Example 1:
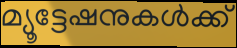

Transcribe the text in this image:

മ്യൂട്ടേഷനുകൾക്ക്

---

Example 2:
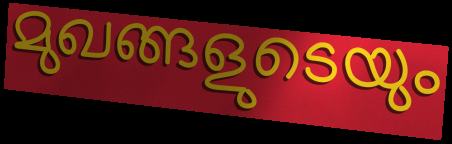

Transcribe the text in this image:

മുഖങ്ങളുടെയും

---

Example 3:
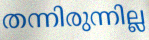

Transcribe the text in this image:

തന്നിരുന്നില്ല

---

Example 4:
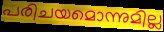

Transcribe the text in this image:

പരിചയമൊന്നുമില്ല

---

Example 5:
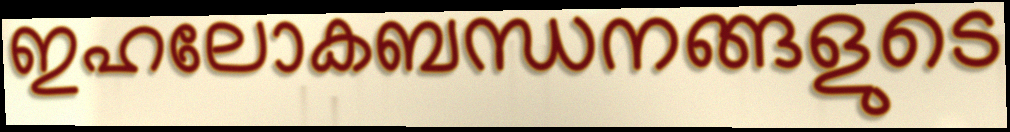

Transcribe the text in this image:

ഇഹലോകബന്ധനങ്ങളുടെ